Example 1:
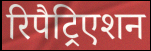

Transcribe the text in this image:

रिपैट्रिएशन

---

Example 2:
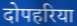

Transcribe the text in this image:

दोपहरिया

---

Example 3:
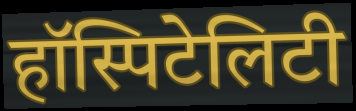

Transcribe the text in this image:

हॉस्पिटेलिटी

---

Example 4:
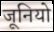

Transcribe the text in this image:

जूनियो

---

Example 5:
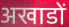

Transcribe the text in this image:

अखाडों